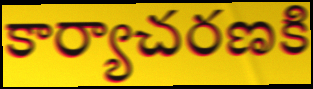
కార్యాచరణకి